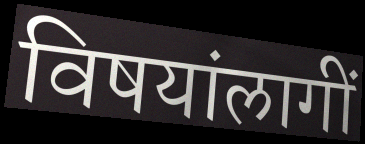
विषयांलागीं